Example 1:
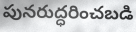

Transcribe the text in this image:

పునరుద్ధరించబడి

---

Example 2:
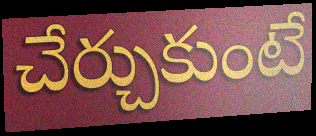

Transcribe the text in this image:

చేర్చుకుంటే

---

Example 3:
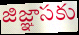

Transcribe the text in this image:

జిజ్ఞాసకు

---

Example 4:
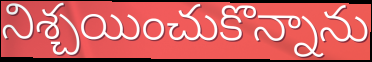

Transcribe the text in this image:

నిశ్చయించుకొన్నాను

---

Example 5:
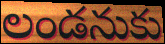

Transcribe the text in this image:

లండనుకు